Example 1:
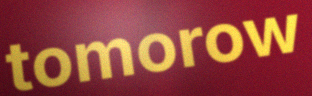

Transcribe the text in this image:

tomorow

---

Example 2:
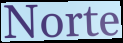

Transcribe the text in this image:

Norte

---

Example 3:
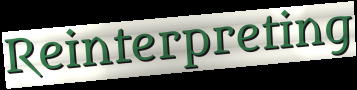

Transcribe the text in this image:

Reinterpreting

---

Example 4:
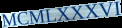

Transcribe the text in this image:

MCMLXXXVI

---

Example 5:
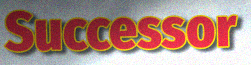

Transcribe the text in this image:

Successor